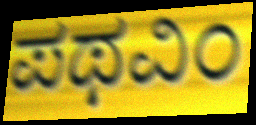
ಪಥವಿಂ